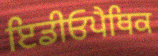
ਇਡੀਓਪੈਥਿਕ